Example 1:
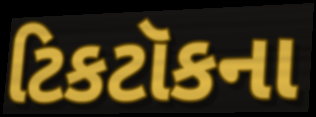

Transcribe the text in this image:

ટિકટૉકના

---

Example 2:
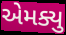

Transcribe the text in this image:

એમક્યુ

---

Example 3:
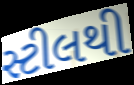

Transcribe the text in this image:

સ્ટીલથી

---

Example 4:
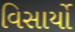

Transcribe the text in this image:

વિસાર્યો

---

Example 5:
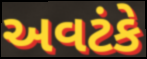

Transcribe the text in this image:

અવટંકે